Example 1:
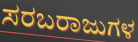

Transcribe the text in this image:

ಸರಬರಾಜುಗಳ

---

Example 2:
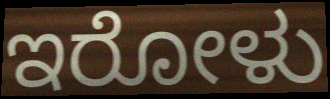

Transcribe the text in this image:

ಇರೋಳು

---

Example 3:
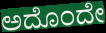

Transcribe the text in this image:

ಅದೊಂದೇ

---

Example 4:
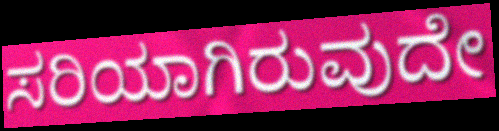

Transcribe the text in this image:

ಸರಿಯಾಗಿರುವುದೇ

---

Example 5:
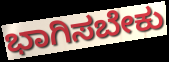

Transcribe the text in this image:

ಭಾಗಿಸಬೇಕು